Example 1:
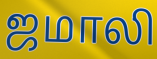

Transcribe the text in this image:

ஜமாலி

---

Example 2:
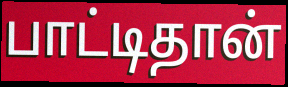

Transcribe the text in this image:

பாட்டிதான்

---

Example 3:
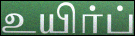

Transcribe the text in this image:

உயிர்ப்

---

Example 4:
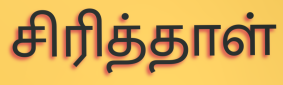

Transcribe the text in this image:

சிரித்தாள்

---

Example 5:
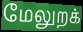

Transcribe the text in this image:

மேலுறக்